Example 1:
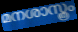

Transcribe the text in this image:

മനശാസ്ത്രം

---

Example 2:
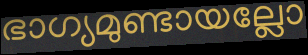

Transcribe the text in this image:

ഭാഗ്യമുണ്ടായല്ലോ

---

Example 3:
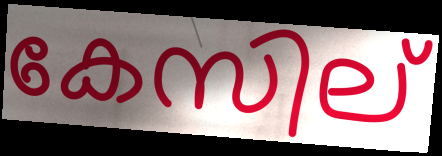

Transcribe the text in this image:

കേസില്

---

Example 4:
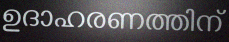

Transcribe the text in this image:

ഉദാഹരണത്തിന്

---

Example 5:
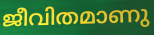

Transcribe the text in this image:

ജീവിതമാണു